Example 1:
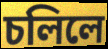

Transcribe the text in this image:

চলিলে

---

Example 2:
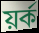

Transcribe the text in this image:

য়ৰ্ক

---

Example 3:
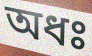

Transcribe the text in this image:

অধঃ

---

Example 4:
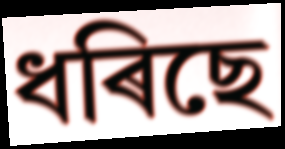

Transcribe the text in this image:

ধৰিছে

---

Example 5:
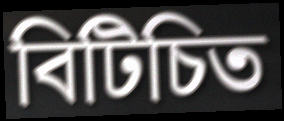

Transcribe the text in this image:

বিটিচিত